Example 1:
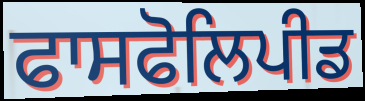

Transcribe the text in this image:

ਫਾਸਫੋਲਿਪੀਡ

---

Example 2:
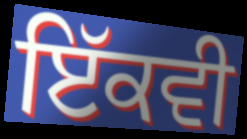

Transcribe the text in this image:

ਇੱਕਵੀ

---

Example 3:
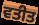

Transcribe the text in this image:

ਵਤੀਤ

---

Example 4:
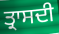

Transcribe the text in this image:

ਤ੍ਰਾਸਦੀ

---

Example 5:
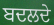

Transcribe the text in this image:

ਬਦਲਦੇ